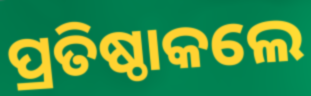
ପ୍ରତିଷ୍ଠାକଲେ